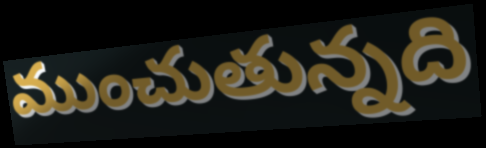
ముంచుతున్నది